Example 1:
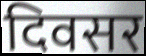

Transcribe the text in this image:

दिवसर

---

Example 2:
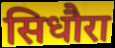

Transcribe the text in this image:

सिधौरा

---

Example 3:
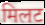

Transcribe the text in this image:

मिलट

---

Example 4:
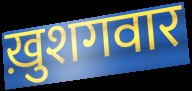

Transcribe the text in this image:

ख़ुशगवार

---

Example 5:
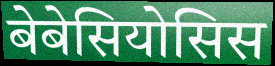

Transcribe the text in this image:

बेबेसियोसिस